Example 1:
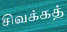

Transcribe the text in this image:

சிவக்கத்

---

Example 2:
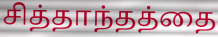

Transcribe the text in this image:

சித்தாந்தத்தை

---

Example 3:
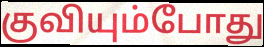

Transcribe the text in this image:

குவியும்போது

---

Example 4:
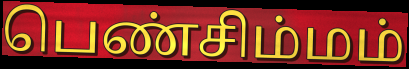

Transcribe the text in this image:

பெண்சிம்மம்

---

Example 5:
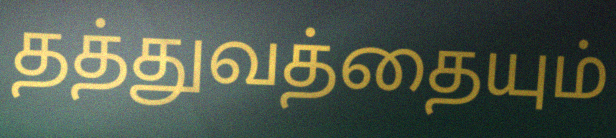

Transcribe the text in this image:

தத்துவத்தையும்